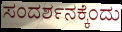
ಸಂದರ್ಶನಕ್ಕೆಂದು